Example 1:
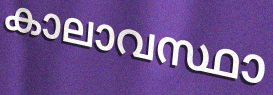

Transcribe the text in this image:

കാലാവസ്ഥാ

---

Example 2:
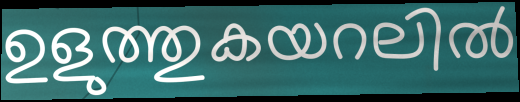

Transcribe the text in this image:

ഉളുത്തുകയറലിൽ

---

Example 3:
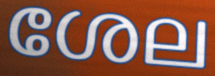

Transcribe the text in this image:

ശേല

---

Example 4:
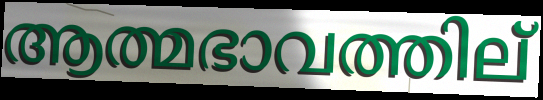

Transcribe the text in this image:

ആത്മഭാവത്തില്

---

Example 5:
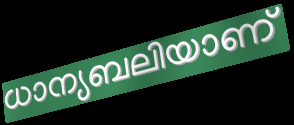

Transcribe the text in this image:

ധാന്യബലിയാണ്